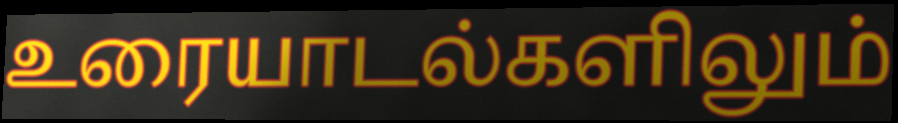
உரையாடல்களிலும்